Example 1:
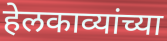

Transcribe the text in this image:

हेलकाव्यांच्या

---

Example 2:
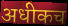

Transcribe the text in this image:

अधीकच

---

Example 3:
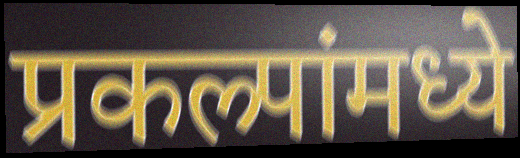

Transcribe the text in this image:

प्रकल्पांमध्ये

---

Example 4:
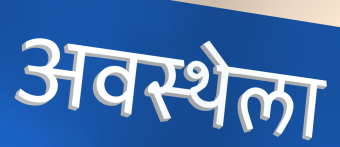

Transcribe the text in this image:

अवस्थेला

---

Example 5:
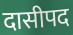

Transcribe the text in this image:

दासीपद